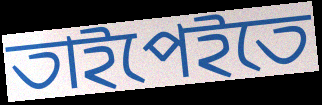
তাইপেইতে